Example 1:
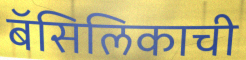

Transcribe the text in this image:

बॅसिलिकाची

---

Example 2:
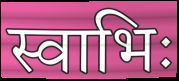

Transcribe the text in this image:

स्वाभिः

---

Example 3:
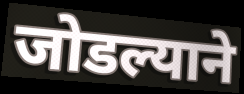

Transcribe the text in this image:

जोडल्याने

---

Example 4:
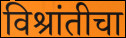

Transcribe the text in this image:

विश्रांतीचा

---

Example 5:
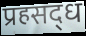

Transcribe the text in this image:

प्रहसद्ध